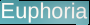
Euphoria